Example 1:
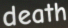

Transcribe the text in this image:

death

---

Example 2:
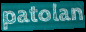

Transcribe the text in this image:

patolan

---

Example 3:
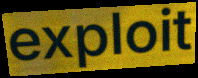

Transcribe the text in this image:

exploit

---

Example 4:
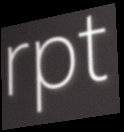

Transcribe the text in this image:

rpt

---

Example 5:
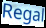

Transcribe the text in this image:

Regal